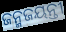
ଜନ୍ମଜୟନ୍ତୀ